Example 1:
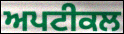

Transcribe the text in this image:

ਅਪਟੀਕਲ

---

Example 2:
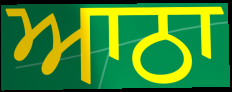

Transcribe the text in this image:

ਆਠਾ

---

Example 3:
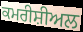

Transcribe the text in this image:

ਕਮਰੀਸ਼ੀਅਲ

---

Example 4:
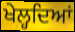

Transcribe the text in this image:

ਖੇਲ੍ਹਦਿਆਂ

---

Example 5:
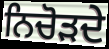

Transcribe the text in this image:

ਨਿਚੋੜਦੇ